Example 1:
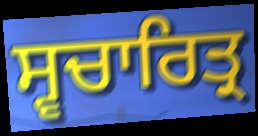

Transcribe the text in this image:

ਸ੍ਵਚਾਰਿਤ੍ਰ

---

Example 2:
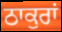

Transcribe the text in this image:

ਠਾਕੁਰਾਂ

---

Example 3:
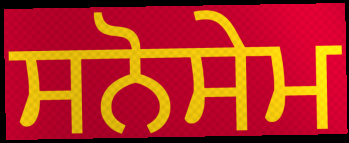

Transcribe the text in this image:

ਸਨੋਸੇਮ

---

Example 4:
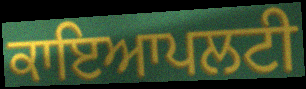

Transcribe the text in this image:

ਕਾਇਆਪਲਟੀ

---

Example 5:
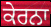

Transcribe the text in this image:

ਕੇਰਨਾ